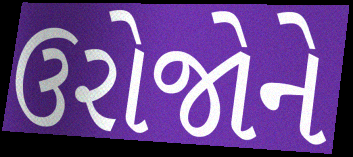
ઉરોજોને